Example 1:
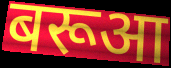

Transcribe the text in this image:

बरूआ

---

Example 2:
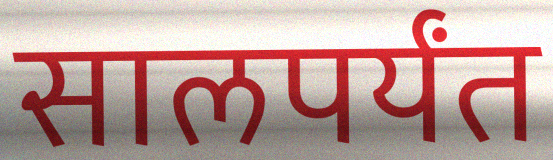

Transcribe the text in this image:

सालपर्यंत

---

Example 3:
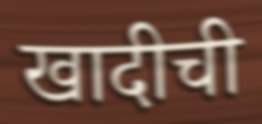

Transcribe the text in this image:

खादीची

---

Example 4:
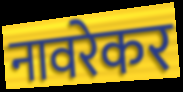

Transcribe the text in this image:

नावरेकर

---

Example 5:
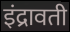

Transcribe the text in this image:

इंद्रावती